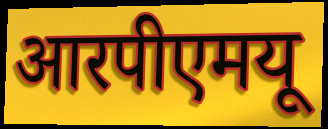
आरपीएमयू